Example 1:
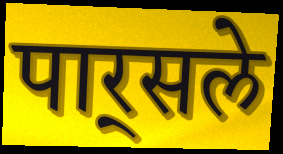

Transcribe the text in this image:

पार्सले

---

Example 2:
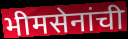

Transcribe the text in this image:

भीमसेनांची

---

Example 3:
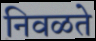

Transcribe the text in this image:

निवळते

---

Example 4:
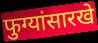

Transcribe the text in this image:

फुग्यांसारखे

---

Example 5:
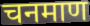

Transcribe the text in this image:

चनमाण